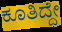
ಕೂತಿದ್ದೇ